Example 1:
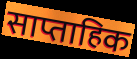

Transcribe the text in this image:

साप्‍ताहिक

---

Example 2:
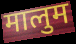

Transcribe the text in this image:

मालुम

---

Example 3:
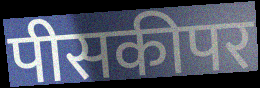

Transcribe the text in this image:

पीसकीपर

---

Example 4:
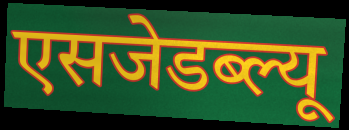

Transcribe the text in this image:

एसजेडब्ल्यू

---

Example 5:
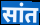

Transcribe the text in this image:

सांत